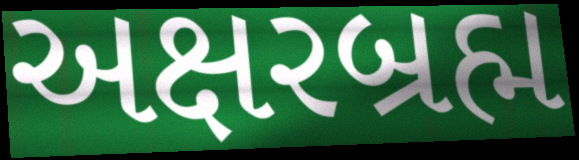
અક્ષરબ્રહ્મ